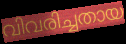
വിവരിച്ചതായ